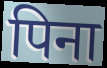
पिना